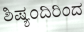
ಶಿಷ್ಯಂದಿರಿಂದ